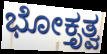
ಭೋಕ್ತೃತ್ವ